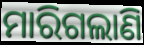
ମାରିଗଲାଣି